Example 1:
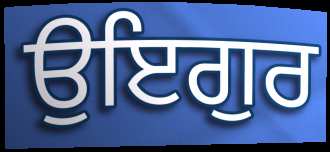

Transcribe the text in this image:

ਉਇਗੁਰ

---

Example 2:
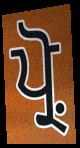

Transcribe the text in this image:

ਪ੍ਰ਼ੋ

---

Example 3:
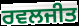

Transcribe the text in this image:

ਰਵਲਜੀਤ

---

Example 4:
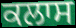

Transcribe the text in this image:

ਕਲਾਸ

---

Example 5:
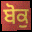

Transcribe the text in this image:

ਬੋਕੁ